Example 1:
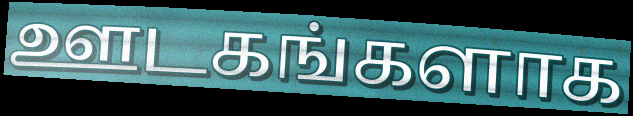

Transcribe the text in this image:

ஊடகங்களாக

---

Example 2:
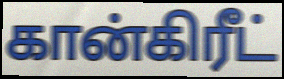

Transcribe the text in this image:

கான்கிரீட்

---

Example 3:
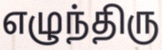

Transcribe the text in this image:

எழுந்திரு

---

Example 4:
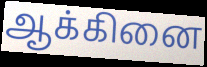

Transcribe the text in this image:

ஆக்கினை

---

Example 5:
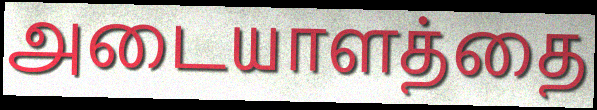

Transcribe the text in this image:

அடையாளத்தை